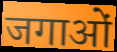
जगाओं